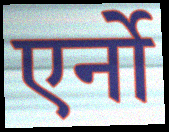
एर्नो